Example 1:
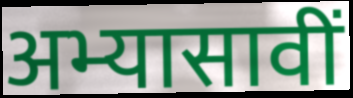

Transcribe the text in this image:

अभ्यासावीं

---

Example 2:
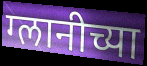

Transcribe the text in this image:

ग्लानीच्या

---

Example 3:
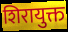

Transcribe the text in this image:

शिरायुक्त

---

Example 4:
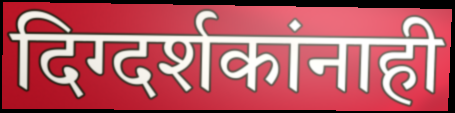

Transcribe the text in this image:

दिग्दर्शकांनाही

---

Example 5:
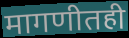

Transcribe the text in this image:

मागणीतही